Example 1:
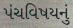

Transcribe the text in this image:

પંચવિષયનું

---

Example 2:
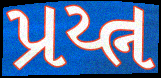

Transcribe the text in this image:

પ્રય્ત્ન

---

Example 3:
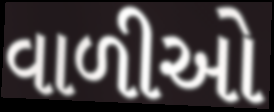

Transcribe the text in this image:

વાળીઓ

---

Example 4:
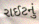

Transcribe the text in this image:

રાઈટનું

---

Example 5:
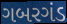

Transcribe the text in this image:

ગબરગંડ